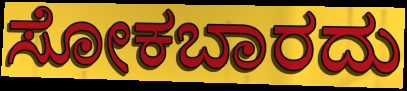
ಸೋಕಬಾರದು